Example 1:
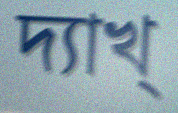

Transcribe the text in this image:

দ্যাখ্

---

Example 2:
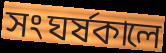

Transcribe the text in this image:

সংঘর্ষকালে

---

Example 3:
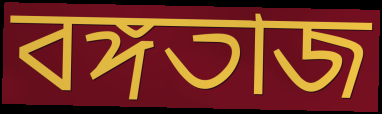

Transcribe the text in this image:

বঙ্গতাজ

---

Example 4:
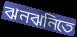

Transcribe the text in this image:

ঝনঝনিতে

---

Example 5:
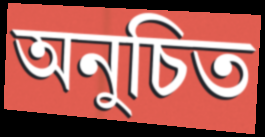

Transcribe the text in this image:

অনুচিত